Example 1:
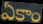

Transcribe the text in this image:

ఏకాం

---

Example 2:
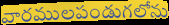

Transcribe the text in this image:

వారములపండుగలోను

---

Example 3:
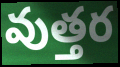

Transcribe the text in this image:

వుత్తర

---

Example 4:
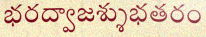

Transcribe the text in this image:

భరద్వాజశ్శుభతరం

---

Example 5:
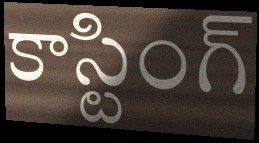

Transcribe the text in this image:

కాస్టింగ్